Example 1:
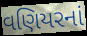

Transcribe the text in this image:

વણિયરનાં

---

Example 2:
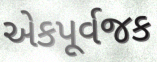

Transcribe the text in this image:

એકપૂર્વજક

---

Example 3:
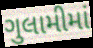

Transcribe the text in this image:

ગુલામીમાં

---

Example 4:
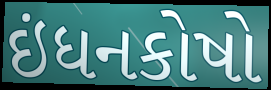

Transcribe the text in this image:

ઇંધનકોષો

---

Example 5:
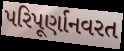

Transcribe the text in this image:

પરિપૂર્ણાનવરત